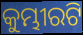
କୁମ୍ଭୀରଟି